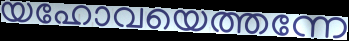
യഹോവയെത്തന്നേ